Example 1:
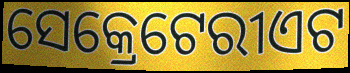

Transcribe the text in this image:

ସେକ୍ରେଟେରୀଏଟ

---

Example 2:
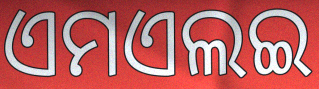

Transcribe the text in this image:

ଏମଏଲଇ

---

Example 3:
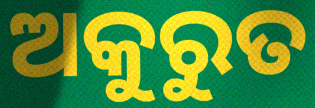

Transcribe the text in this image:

ଅକୁରୁତ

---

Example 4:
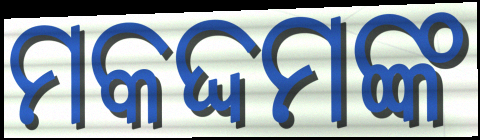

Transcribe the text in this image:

ମକଦ୍ଦମଙ୍କ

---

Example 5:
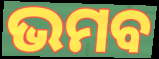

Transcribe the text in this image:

ଭମବ